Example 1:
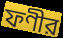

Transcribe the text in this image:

ফণীর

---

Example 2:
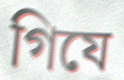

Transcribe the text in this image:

গিযে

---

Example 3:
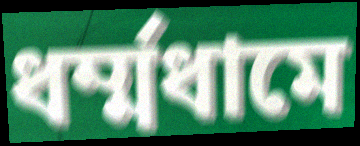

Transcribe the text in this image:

ধর্ম্মধামে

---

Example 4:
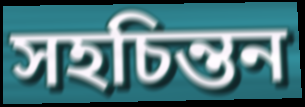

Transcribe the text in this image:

সহচিন্তন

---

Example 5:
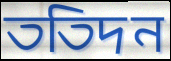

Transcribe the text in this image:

ততিদন